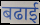
बढाई